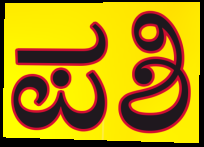
ಪಶಿ